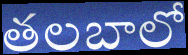
తలబాలో